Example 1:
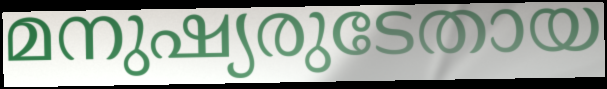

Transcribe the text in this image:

മനുഷ്യരുടേതായ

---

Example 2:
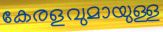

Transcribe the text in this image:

കേരളവുമായുള്ള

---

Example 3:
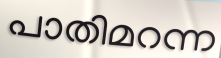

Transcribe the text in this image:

പാതിമറന്ന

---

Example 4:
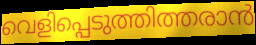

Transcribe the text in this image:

വെളിപ്പെടുത്തിത്തരാൻ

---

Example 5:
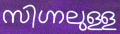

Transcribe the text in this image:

സിഗ്നലുള്ള